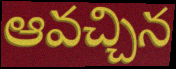
ఆవచ్చిన